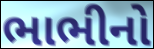
ભાભીનો